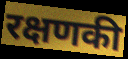
रक्षणकी